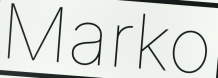
Marko